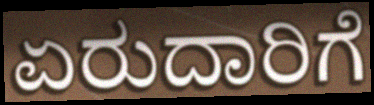
ಏರುದಾರಿಗೆ